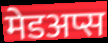
मेडअप्स